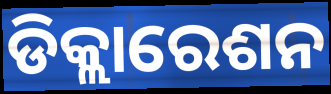
ଡିକ୍ଲାରେଶନ